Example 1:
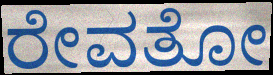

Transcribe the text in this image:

ರೇವತೋ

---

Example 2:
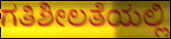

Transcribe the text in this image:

ಗತಿಶೀಲತೆಯಲ್ಲಿ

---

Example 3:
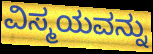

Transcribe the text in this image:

ವಿಸ್ಮಯವನ್ನು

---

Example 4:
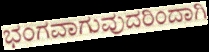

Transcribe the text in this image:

ಭಂಗವಾಗುವುದರಿಂದಾಗಿ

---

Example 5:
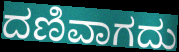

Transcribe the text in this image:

ದಣಿವಾಗದು